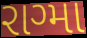
રાગ્મા